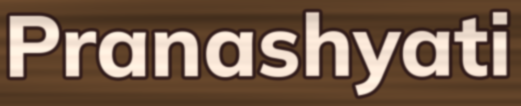
Pranashyati